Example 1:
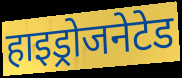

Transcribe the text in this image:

हाइड्रोजनेटेड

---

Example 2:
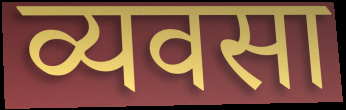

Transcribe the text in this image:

व्यवसा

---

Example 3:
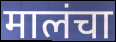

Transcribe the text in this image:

मालंचा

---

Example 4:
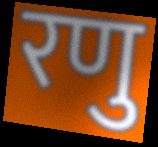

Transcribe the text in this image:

रणु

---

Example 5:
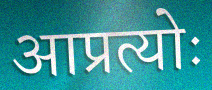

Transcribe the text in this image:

आप्रत्योः